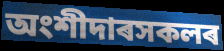
অংশীদাৰসকলৰ